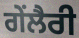
ਗੇਂਲੈਰੀ